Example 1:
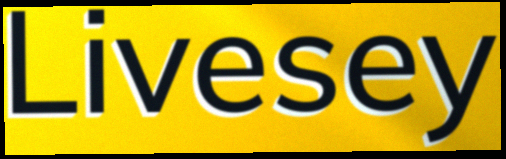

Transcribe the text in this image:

Livesey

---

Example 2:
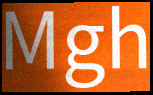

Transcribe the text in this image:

Mgh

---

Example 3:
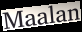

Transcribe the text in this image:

Maalan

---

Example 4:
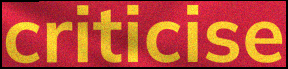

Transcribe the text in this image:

criticise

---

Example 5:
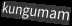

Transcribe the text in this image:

kungumam